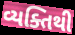
વ્યક્તિથી